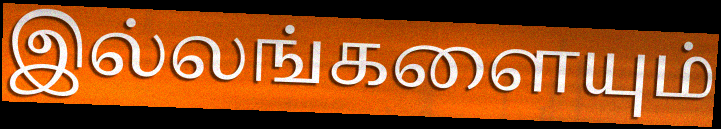
இல்லங்களையும்